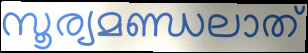
സൂര്യമണ്ഡലാത്